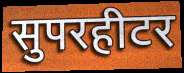
सुपरहीटर